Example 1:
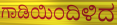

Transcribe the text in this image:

ಗಾಡಿಯಿಂದಿಳಿದ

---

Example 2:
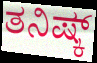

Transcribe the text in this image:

ತನಿಷ್ಕ್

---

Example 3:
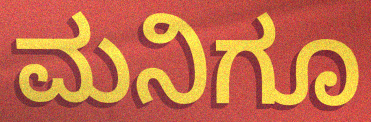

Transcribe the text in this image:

ಮನಿಗೂ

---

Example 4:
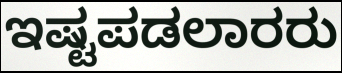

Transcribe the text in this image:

ಇಷ್ಟಪಡಲಾರರು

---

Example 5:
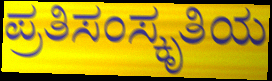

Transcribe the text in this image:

ಪ್ರತಿಸಂಸ್ಕೃತಿಯ